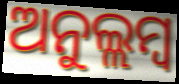
ଅନୁଲ୍ଲମ୍ବ